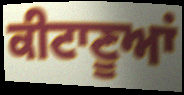
ਕੀਟਾਣੂਆਂ